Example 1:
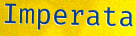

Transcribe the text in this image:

Imperata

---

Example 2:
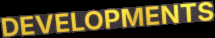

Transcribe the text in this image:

DEVELOPMENTS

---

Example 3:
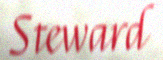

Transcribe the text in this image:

Steward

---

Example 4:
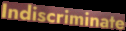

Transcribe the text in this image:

Indiscriminate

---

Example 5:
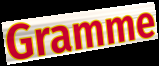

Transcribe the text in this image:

Gramme